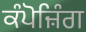
ਕੰਪੋਜ਼ਿੰਗ